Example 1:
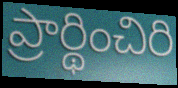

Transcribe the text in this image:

ప్రార్థించిరి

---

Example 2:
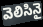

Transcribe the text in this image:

వెలిసినై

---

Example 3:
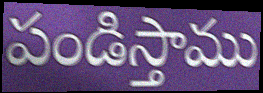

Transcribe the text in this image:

పండిస్తాము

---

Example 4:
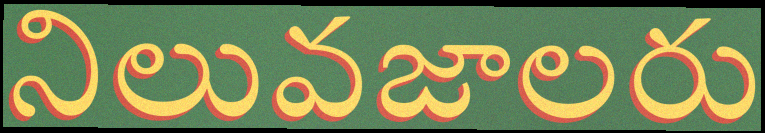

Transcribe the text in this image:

నిలువజాలరు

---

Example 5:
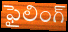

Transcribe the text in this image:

ఫైలింగ్